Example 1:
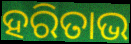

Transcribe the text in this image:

ହରିତାଭ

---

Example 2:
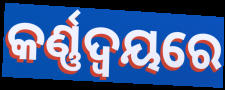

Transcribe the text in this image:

କର୍ଣ୍ଣଦ୍ୱୟରେ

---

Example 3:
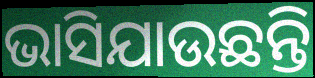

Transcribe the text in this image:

ଭାସିଯାଉଛନ୍ତି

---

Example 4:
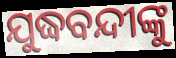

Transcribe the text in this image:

ଯୁଦ୍ଧବନ୍ଦୀଙ୍କୁ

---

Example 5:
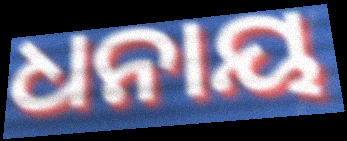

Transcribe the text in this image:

ଧନାୟ